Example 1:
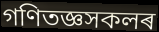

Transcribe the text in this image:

গণিতজ্ঞসকলৰ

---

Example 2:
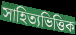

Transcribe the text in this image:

সাহিত্যভিত্তিক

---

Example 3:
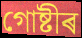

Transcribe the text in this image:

গোষ্টীৰ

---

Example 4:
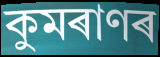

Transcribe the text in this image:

কুমৰাণৰ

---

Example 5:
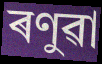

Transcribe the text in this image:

ৰণুৱা